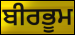
ਬੀਰਭੂਮ